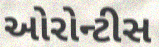
ઓરોન્ટીસ